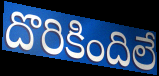
దొరికిందిలే